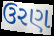
ઉરણ